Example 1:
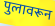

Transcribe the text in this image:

पुलावरून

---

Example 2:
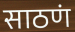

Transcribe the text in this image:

साठणं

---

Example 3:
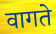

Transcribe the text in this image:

वागते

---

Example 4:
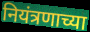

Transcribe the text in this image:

नियंत्रणाच्या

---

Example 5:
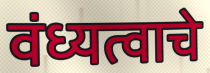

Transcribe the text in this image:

वंध्यत्वाचे